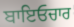
ਬਾਇਓਚਾਰ